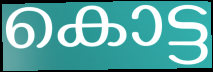
കൊട്ട